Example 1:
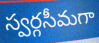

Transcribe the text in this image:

స్వర్గసీమగా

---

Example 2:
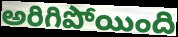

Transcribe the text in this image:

అరిగిపోయింది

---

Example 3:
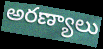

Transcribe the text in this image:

అరణ్యాలు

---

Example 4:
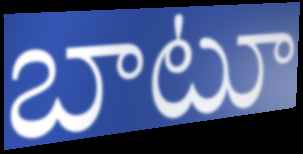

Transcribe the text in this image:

బాటూ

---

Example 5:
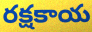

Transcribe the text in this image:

రక్షకాయ